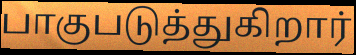
பாகுபடுத்துகிறார்